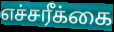
எச்சரீக்கை